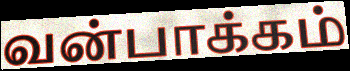
வன்பாக்கம்